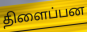
திளைப்பன